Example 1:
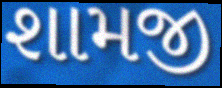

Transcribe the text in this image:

શામજી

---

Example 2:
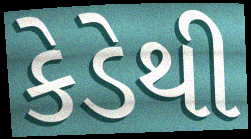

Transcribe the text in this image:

કેડેથી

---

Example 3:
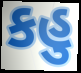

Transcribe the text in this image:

કહુ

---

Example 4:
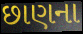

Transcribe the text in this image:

છાણના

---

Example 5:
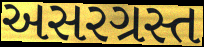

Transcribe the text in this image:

અસરગ્રસ્ત